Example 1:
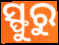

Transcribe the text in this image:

ସ୍ଫୁରୁ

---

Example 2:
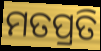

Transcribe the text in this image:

ମତପ୍ରତି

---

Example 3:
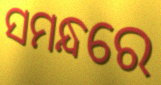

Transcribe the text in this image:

ସମନ୍ଧରେ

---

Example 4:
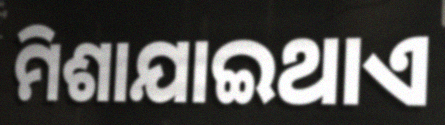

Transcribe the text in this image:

ମିଶାଯାଇଥାଏ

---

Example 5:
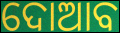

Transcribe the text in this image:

ଦୋଆବ